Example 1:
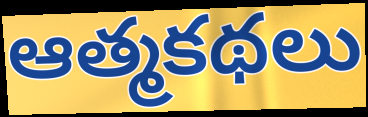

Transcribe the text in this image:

ఆత్మకథలు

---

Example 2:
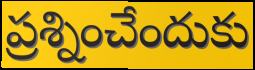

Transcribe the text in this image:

ప్రశ్నించేందుకు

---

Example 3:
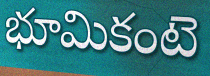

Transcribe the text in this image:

భూమికంటె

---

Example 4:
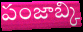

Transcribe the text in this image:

పంజాబ్కి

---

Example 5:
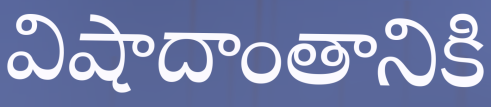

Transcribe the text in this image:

విషాదాంతానికి